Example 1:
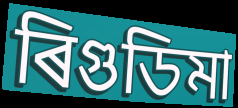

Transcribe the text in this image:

ৰিগুডিমা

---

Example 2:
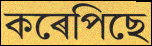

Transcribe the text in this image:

কৰেপিছে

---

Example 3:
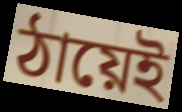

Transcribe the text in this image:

ঠায়েই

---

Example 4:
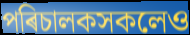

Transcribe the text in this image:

পৰিচালকসকলেও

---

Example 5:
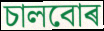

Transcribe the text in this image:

চালবোৰ